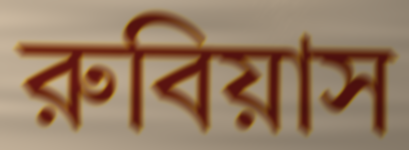
রুবিয়াস